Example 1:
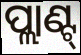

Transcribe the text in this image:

ପ୍ଲାଣ୍ଟ୍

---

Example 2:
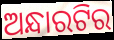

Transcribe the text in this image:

ଅନ୍ଧାରଟିର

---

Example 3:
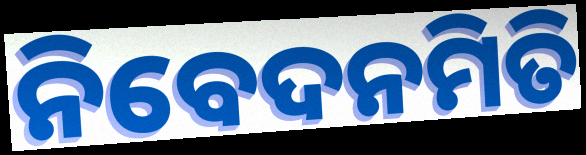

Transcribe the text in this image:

ନିବେଦନମିତି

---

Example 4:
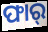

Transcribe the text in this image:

ଫାର୍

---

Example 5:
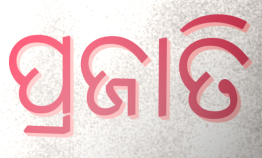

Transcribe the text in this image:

ପ୍ରଜାତି